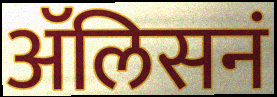
ॲलिसनं